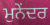
ਮੁਨੇਂਦਰ